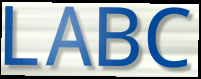
LABC